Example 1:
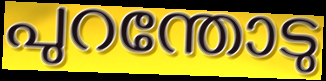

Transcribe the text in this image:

പുറന്തോടു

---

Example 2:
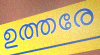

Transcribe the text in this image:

ഉത്തരേ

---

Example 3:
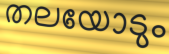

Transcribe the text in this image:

തലയോടും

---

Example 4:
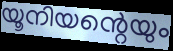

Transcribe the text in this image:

യൂനിയന്റെയും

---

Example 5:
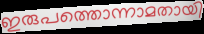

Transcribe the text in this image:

ഇരുപത്തൊന്നാമതായി